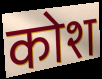
कोश